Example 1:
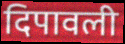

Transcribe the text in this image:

दिपावली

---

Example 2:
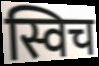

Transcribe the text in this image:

स्विच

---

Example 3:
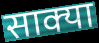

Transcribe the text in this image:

साक्या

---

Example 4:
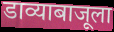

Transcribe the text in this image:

डाव्याबाजूला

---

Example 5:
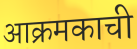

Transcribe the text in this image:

आक्रमकाची